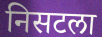
निसटला